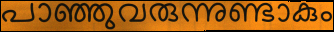
പാഞ്ഞുവരുന്നുണ്ടാകും